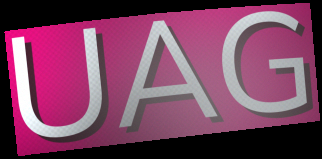
UAG